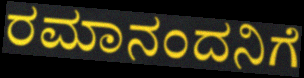
ರಮಾನಂದನಿಗೆ